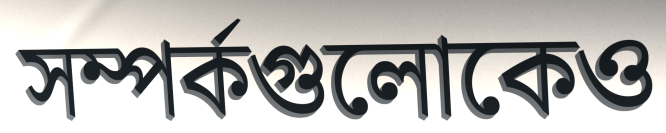
সম্পর্কগুলোকেও